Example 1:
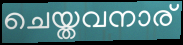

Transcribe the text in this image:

ചെയ്തവനാര്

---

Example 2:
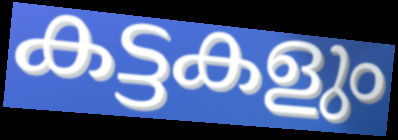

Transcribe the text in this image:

കട്ടകളും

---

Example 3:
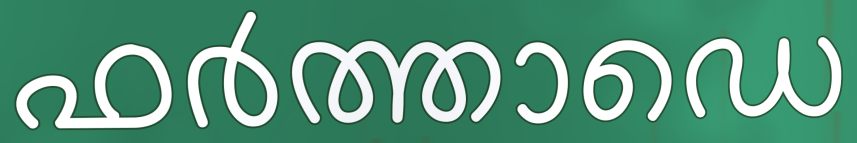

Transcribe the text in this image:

ഫർത്താഡെ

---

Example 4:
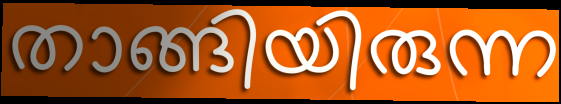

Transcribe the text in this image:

താങ്ങിയിരുന്ന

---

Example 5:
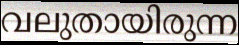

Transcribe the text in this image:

വലുതായിരുന്ന